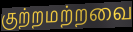
குற்றமற்றவை